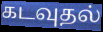
கடவுதல்